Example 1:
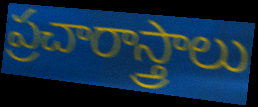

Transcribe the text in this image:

ప్రచారాస్త్రాలు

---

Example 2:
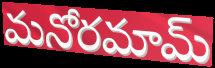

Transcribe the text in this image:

మనోరమామ్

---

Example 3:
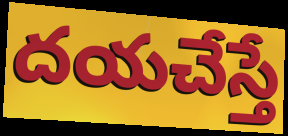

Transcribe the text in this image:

దయచేస్తే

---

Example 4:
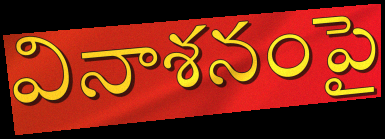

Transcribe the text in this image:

వినాశనంపై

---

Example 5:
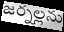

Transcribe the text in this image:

జర్నల్లను